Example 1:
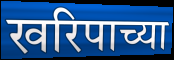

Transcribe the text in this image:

खरिपाच्या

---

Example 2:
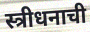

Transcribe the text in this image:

स्त्रीधनाची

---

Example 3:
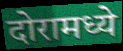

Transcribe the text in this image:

दोरामध्ये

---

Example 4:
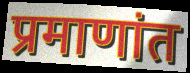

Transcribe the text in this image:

प्रमाणांत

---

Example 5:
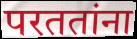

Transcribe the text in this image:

परततांना